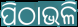
ପିଠାଭଳି